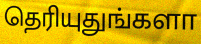
தெரியுதுங்களா